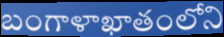
బంగాళాఖాతంలోని